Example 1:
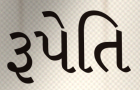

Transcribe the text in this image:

રૂપેતિ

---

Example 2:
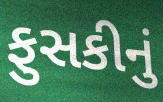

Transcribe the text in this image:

ફુસકીનું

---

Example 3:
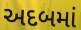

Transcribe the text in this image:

અદબમાં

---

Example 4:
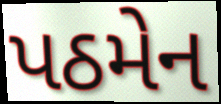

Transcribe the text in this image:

પઠમેન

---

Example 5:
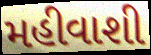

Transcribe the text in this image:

મહીવાશી